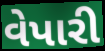
વેપારી